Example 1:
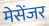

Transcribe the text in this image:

मेसेंजर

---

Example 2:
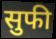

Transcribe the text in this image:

सुफी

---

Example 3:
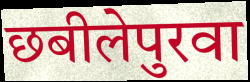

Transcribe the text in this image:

छबीलेपुरवा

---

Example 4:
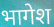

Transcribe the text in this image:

भागेश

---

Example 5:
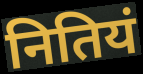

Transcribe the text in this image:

नितियं